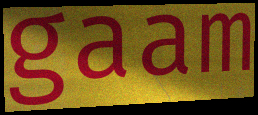
gaam